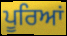
ਪੂਰਿਆਂ